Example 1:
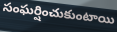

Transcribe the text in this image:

సంఘర్షించుకుంటాయి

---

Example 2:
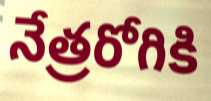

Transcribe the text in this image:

నేత్రరోగికి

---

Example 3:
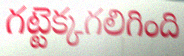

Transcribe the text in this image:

గట్టెక్కగలిగింది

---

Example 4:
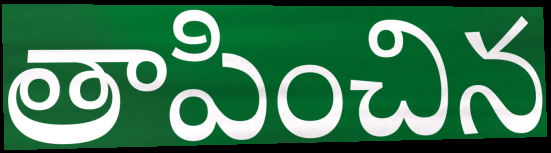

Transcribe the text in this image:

తాపించిన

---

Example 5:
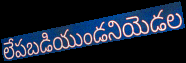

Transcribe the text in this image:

లేపబడియుండనియెడల